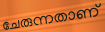
ചേരുന്നതാണ്